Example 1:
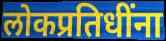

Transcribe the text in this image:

लोकप्रतिधींना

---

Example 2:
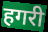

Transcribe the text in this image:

हगरी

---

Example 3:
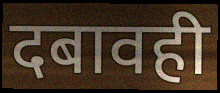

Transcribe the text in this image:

दबावही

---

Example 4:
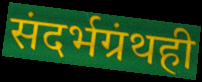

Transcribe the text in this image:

संदर्भग्रंथही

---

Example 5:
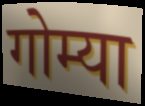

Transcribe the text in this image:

गोम्या